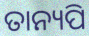
ତାନ୍ୟପି